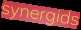
synergids